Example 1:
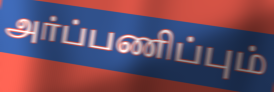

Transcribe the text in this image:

அர்ப்பணிப்பும்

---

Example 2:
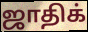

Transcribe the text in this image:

ஜாதிக்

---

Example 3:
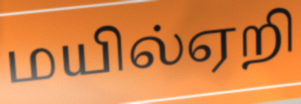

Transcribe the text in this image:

மயில்ஏறி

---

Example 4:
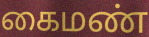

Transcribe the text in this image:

கைமண்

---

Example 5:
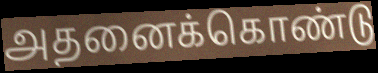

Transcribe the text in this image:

அதனைக்கொண்டு